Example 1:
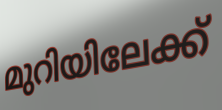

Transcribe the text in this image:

മുറിയിലേക്ക്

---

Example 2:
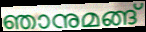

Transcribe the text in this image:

ഞാനുമങ്ങ്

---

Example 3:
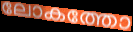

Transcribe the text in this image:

ലോകത്തോ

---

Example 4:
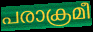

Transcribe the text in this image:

പരാക്രമീ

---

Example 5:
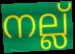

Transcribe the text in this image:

നല്ല്